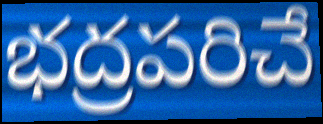
భద్రపరిచే